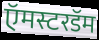
ऍमस्टरडॅम